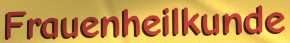
Frauenheilkunde